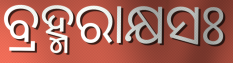
ବ୍ରହ୍ମରାକ୍ଷସଃ